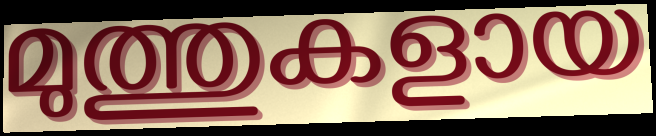
മുത്തുകളായ